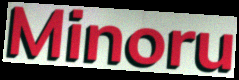
Minoru